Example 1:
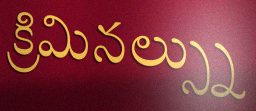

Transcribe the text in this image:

క్రిమినల్స్ను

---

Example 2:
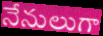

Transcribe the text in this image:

నేనులుగా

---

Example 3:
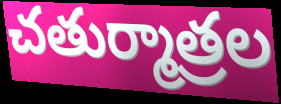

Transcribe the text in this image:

చతుర్మాత్రల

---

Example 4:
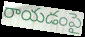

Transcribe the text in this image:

రాయడంపై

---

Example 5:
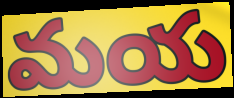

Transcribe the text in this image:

మయ